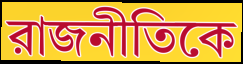
রাজনীতিকে